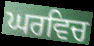
ਘਰਵਿਚ